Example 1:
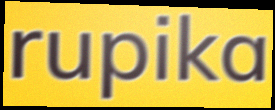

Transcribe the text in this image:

rupika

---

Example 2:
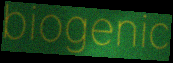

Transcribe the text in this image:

biogenic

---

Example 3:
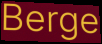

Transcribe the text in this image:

Berge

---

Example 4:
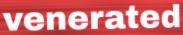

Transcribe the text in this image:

venerated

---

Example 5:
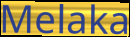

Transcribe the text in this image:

Melaka